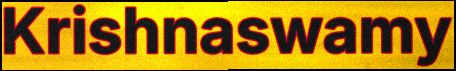
Krishnaswamy